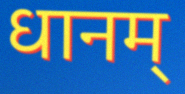
धानम्